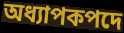
অধ্যাপকপদে